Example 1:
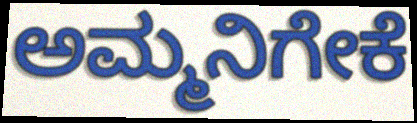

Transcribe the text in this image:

ಅಮ್ಮನಿಗೇಕೆ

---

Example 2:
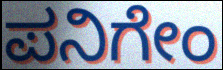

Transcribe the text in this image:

ಪನಿಗೇಂ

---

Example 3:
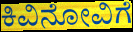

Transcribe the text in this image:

ಕಿವಿನೋವಿಗೆ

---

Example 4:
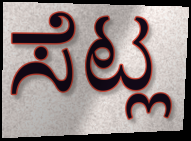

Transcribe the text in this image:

ಸೆಟ್ಲ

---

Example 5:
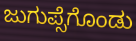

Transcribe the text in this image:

ಜುಗುಪ್ಸೆಗೊಂಡು